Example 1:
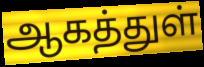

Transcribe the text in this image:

ஆகத்துள்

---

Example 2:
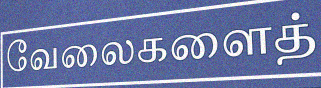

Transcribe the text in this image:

வேலைகளைத்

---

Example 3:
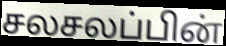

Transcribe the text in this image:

சலசலப்பின்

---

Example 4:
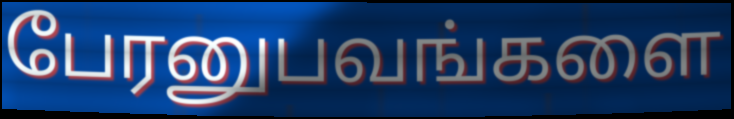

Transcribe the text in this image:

பேரனுபவங்களை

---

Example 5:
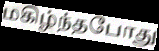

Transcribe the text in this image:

மகிழ்ந்தபோது